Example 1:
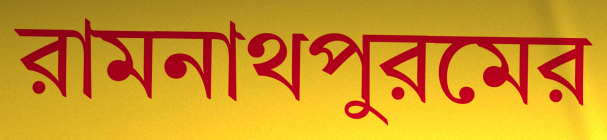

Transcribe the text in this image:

রামনাথপুরমের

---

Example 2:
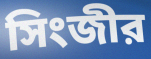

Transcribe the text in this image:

সিংজীর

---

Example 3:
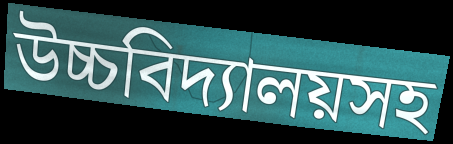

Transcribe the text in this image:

উচ্চবিদ্যালয়সহ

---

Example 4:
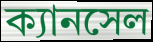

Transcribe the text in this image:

ক্যানসেল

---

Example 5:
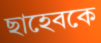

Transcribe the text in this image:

ছাহেবকে